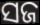
ସଜ